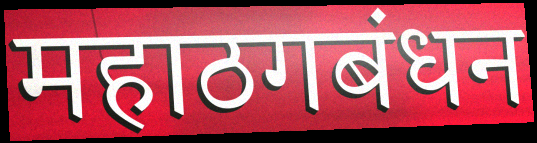
महाठगबंधन